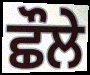
ਛੌਲੇ